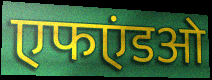
एफएंडओ